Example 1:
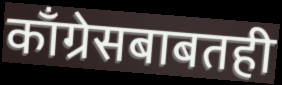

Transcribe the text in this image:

काँग्रेसबाबतही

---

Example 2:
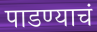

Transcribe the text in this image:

पाडण्याचं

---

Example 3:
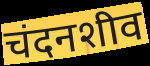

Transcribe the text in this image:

चंदनशीव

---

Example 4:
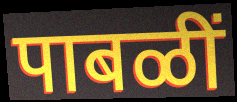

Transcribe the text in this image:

पाबळीं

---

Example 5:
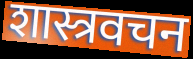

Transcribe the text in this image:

शास्त्रवचन